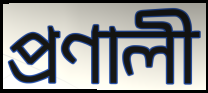
প্ৰণালী